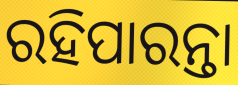
ରହିପାରନ୍ତା